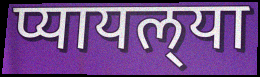
प्यायल्या